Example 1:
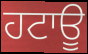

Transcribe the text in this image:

ਹਟਾਊ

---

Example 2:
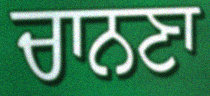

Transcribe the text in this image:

ਚਾਨਣਾ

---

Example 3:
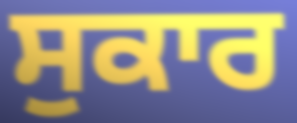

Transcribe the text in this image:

ਸੁਕਾਰ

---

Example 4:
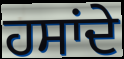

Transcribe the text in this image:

ਹਸਾਂਦੇ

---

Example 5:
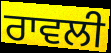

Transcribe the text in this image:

ਰਾਵਲੀ